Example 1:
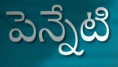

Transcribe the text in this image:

పెన్నేటి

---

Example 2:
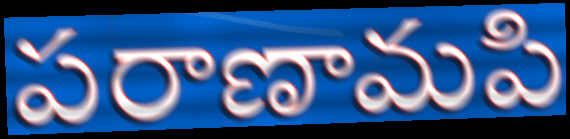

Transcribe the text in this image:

పరాణామపి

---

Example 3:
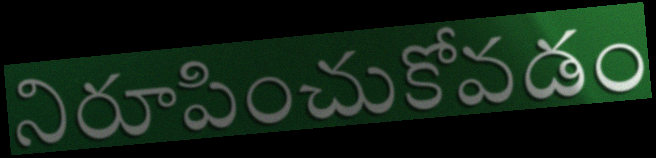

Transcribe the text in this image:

నిరూపించుకోవడం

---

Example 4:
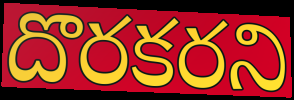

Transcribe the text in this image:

దొరకరని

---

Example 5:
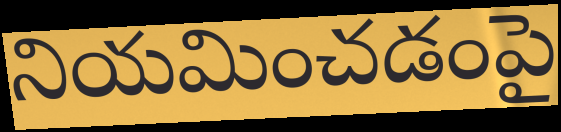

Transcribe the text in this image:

నియమించడంపై